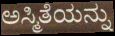
ಅಸ್ಮಿತೆಯನ್ನು